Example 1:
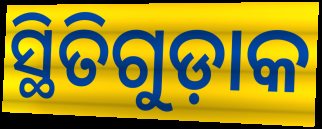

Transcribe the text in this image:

ସ୍ଥିତିଗୁଡ଼ାକ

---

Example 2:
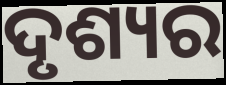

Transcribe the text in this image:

ଦୃଶ୍ୟର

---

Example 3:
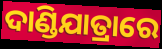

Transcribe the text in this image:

ଦାଣ୍ଡିଯାତ୍ରାରେ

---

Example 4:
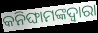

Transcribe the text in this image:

କନିଙ୍ଘାମଙ୍କଦ୍ଵାରା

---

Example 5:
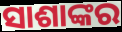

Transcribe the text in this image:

ସାଶାଙ୍କର